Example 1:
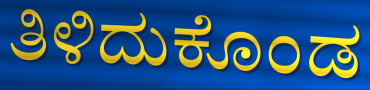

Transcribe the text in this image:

ತಿಳಿದುಕೊಂಡ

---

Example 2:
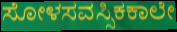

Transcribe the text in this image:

ಸೋಳಸವಸ್ಸಿಕಕಾಲೇ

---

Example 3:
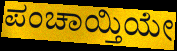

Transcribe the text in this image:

ಪಂಚಾಯ್ತಿಯೇ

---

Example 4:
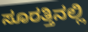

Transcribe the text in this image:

ಸೂರತ್ತಿನಲ್ಲಿ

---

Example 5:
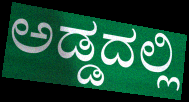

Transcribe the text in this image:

ಅಡ್ಡದಲ್ಲಿ